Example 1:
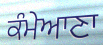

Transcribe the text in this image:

ਕੰਮੇਆਣਾ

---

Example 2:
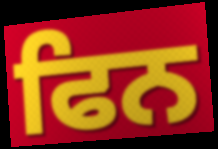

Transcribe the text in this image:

ਫਿਨ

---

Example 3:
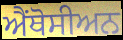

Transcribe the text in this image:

ਐਂਥੋਸੀਅਨ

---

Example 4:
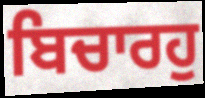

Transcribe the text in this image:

ਬਿਚਾਰਹੁ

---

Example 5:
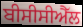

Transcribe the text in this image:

ਬੀਸੀਸੀਐੱਲ